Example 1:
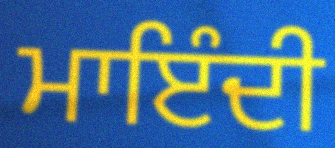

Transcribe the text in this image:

ਮਾਇੰਦੀ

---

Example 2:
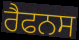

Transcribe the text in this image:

ਰੈਫਨਸ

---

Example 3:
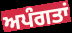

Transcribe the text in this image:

ਅਪੰਗਤਾਂ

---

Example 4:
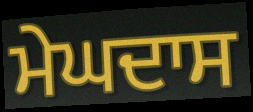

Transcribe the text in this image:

ਮੇਘਦਾਸ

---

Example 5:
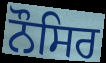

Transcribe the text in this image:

ਨੌਸਿਰ